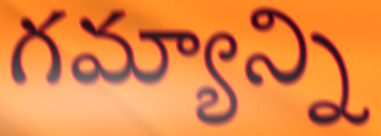
గమ్యాన్ని